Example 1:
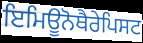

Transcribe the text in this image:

ਇਮਿਊਨੋਥੈਰੇਪਿਸਟ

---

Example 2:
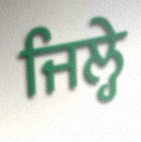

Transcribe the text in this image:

ਜਿਲ੍ਹੇ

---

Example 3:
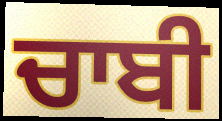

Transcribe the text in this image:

ਚਾਬੀ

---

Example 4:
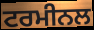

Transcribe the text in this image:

ਟਰਮੀਨਲ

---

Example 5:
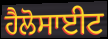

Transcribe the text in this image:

ਹੈਲੋਸਾਈਟ